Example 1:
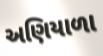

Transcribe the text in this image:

અણિયાળા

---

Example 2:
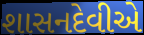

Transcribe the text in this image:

શાસનદેવીએ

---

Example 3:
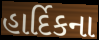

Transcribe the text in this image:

હાર્દિકના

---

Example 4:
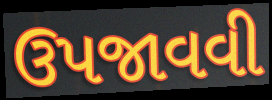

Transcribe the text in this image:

ઉપજાવવી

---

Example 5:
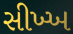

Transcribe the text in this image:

સીખ્ખ